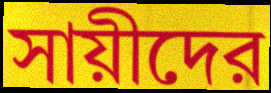
সায়ীদের